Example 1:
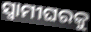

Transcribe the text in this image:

ସ୍ୱାମୀଘରକୁ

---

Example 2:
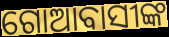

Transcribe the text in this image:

ଗୋଆବାସୀଙ୍କ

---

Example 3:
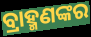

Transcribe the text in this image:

ବ୍ରାହ୍ମଣଙ୍କର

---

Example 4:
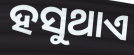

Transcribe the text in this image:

ହସୁଥାଏ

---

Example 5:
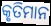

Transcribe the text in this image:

କୃତିମାନ